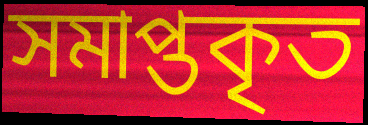
সমাপ্তকৃত